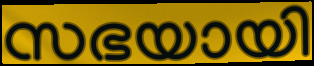
സഭയായി